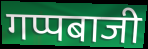
गप्पबाजी